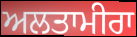
ਅਲਤਾਮੀਰਾ